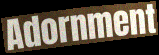
Adornment